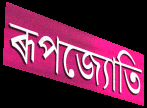
ৰূপজ্যোতি